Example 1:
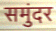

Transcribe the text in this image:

समुंदर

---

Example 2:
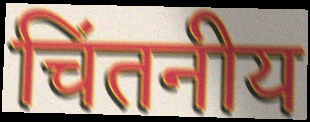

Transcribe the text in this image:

चिंतनीय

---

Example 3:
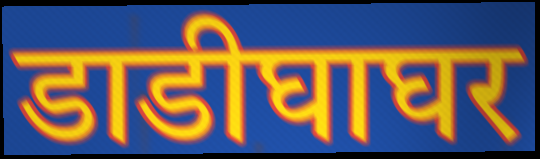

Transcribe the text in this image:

डाडीघाघर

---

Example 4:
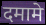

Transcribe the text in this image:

दमामे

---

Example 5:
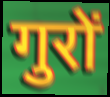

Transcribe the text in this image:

गुरों